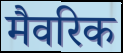
मैवरिक